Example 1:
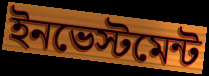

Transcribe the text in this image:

ইনভেস্টমেন্ট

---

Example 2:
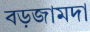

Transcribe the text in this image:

বড়জামদা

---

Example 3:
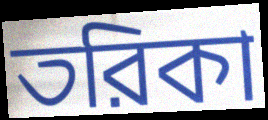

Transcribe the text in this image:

তরিকা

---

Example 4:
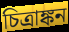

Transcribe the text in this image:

চিত্রাঙ্কন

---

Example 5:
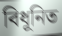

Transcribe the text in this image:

বিধূনিত